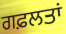
ਗਫ਼ਲਤਾਂ